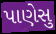
પાણેસુ